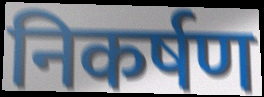
निकर्षण